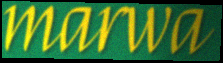
marwa